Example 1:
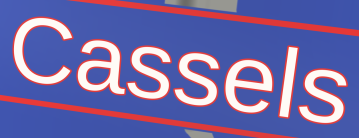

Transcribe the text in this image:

Cassels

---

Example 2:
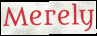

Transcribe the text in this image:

Merely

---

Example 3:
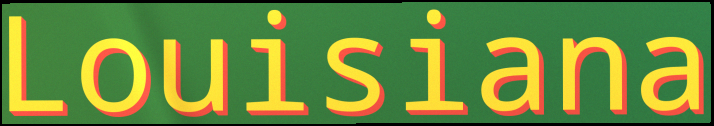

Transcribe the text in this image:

Louisiana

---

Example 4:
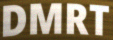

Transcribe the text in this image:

DMRT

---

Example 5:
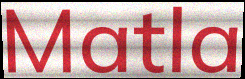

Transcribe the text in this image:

Matla